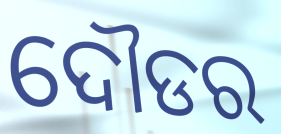
ଦୌଡର